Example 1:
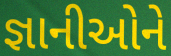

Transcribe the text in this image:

જ્ઞાનીઓને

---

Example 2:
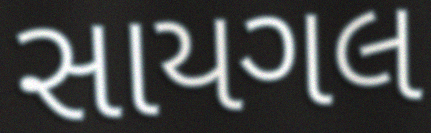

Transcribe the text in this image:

સાયગલ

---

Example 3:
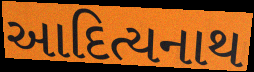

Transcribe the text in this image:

આદિત્યનાથ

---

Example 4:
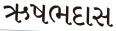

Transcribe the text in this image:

ઋષભદાસ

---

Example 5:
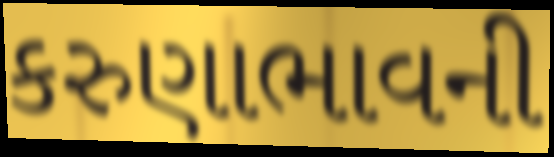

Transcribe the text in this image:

કરુણાભાવની